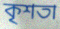
কৃশতা